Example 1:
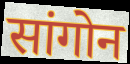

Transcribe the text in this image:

सांगोन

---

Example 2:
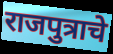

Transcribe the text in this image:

राजपुत्राचे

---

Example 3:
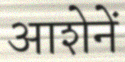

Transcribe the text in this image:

आशेनें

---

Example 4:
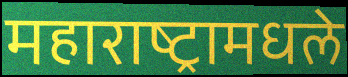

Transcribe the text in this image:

महाराष्ट्रामधले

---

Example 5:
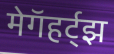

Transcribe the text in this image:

मेगॅहर्ट्‌झ